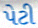
પેટી